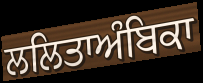
ਲਲਿਤਾਅੰਬਿਕਾ